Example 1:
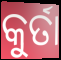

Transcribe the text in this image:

କୁର୍ତା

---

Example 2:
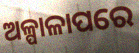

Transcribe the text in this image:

ଅଳ୍ପାଳାପରେ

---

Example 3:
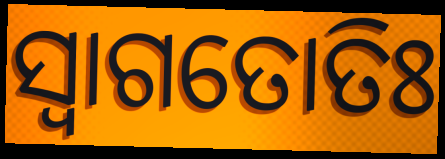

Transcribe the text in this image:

ସ୍ଵାଗତୋତିଃ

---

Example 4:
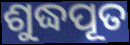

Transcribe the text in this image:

ଶୁଦ୍ଧପୂତ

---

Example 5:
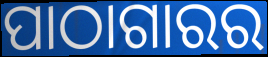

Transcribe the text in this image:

ପାଠାଗାରର